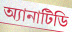
অ্যানাটিডি